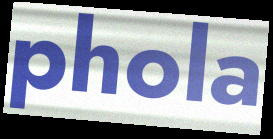
phola